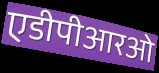
एडीपीआरओ